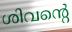
ശിവന്റെ